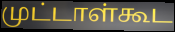
முட்டாள்கூட